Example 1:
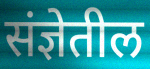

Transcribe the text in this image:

संज्ञेतील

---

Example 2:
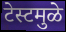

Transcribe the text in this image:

टेस्टमुळे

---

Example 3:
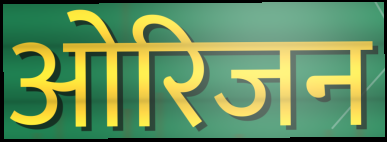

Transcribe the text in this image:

ओरिजन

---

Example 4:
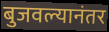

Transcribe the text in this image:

बुजवल्यानंतर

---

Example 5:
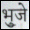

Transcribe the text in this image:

भु॒जे